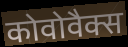
कोवोवैक्स